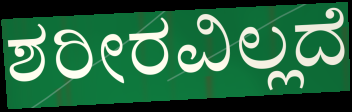
ಶರೀರವಿಲ್ಲದೆ